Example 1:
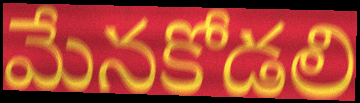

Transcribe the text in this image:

మేనకోడలి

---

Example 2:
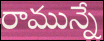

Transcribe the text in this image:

రామున్నే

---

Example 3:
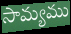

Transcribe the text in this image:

సామ్యము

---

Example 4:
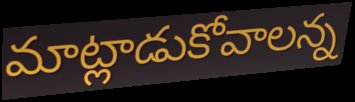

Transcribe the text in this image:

మాట్లాడుకోవాలన్న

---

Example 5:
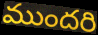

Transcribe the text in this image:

ముందరి